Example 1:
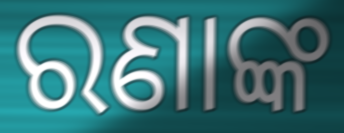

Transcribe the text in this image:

ରଣାଙ୍କ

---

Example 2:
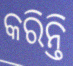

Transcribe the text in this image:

କରିନ୍ତି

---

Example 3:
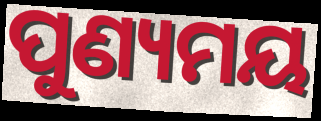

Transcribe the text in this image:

ପୁଣ୍ୟମୟ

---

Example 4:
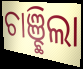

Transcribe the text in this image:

ଚାଞ୍ଛିଲା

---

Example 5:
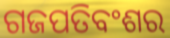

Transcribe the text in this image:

ଗଜପତିବଂଶର